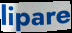
lipare